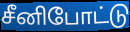
சீனிபோட்டு